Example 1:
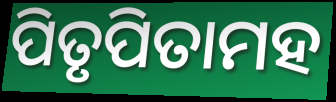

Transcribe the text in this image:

ପିତୃପିତାମହ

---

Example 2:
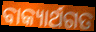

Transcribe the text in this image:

ବାକ୍ୟାର୍ଥଗତ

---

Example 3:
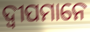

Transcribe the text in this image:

ଦ୍ୱୀପମାନେ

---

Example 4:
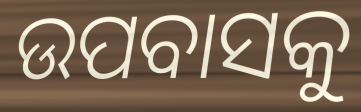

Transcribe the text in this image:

ଉପବାସକୁ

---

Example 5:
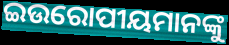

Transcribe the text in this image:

ଇଉରୋପୀୟମାନଙ୍କୁ